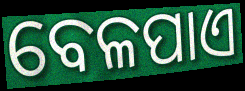
ବେଳପାଏ